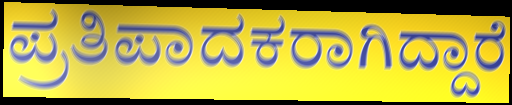
ಪ್ರತಿಪಾದಕರಾಗಿದ್ದಾರೆ